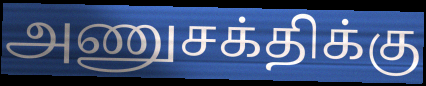
அணுசக்திக்கு